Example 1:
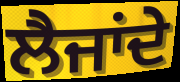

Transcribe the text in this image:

ਲੈਜਾਂਦੇ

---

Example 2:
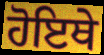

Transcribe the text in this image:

ਹੋਇਥੇ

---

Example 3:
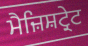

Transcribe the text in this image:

ਮੈਜ਼ਿਸ਼ਟ੍ਰੇਟ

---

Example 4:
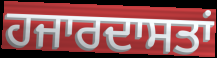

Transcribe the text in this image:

ਹਜਾਰਦਾਸਤਾਂ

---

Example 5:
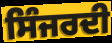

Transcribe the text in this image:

ਸਿੰਜਰਦੀ